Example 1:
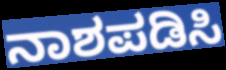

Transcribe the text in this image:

ನಾಶಪಡಿಸಿ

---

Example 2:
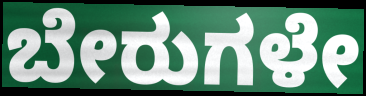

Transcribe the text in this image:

ಬೇರುಗಳೇ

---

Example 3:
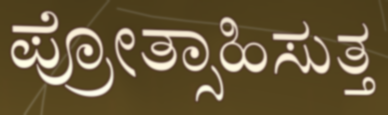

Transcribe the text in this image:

ಪ್ರೋತ್ಸಾಹಿಸುತ್ತ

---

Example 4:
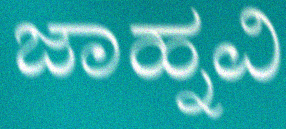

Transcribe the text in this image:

ಜಾಹ್ನವಿ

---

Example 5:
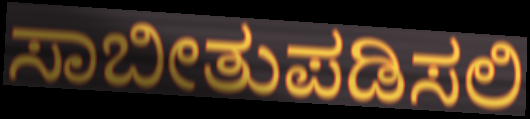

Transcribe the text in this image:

ಸಾಬೀತುಪಡಿಸಲಿ